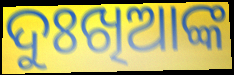
ଦୁଃଖିଆଙ୍କ